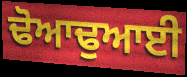
ਢੋਆਢੁਆਈ